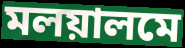
মলয়ালমে